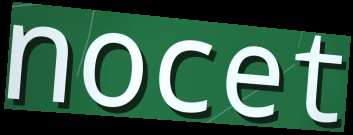
nocet